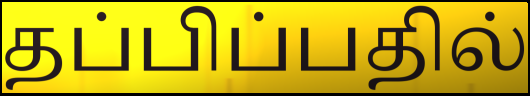
தப்பிப்பதில்